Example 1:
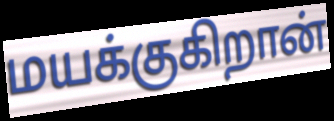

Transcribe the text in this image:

மயக்குகிறான்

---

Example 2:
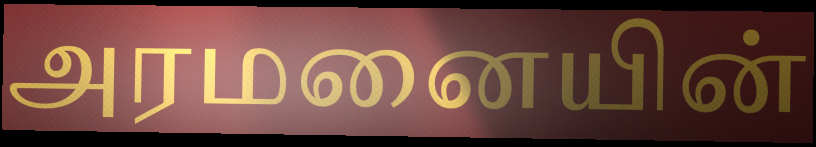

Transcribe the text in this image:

அரமனையின்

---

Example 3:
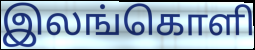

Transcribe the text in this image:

இலங்கொளி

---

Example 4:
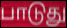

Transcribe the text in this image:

பாடுது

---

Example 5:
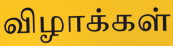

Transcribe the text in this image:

விழாக்கள்